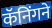
कॅनिंगने